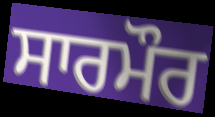
ਸਾਰਮੌਰ